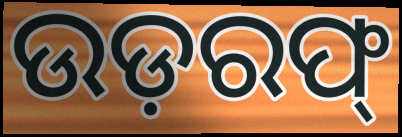
ଉଡ଼ରଫ୍